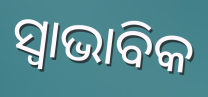
ସ୍ୱାଭାବିକ